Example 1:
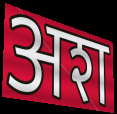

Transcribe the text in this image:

अश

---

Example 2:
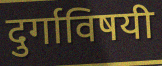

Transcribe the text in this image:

दुर्गाविषयी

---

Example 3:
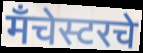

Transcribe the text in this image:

मँचेस्टरचे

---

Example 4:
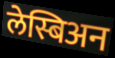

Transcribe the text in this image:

लेस्बिअन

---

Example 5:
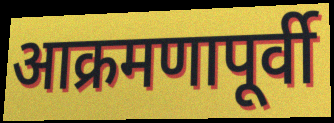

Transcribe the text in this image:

आक्रमणापूर्वी